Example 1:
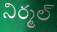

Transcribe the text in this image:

నిర్మల్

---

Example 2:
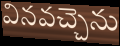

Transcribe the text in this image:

వినవచ్చెను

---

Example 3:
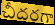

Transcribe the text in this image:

చీదరగా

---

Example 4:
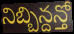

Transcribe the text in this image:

నిబ్బిన్దన్తో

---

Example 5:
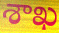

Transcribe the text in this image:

శాఖ